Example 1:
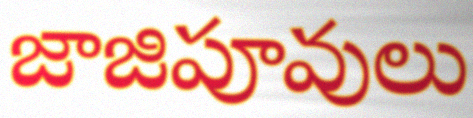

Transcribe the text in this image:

జాజిపూవులు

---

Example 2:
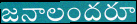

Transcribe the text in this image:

జనాలందరూ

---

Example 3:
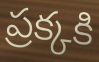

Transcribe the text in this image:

ప్రక్కకి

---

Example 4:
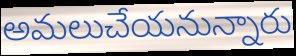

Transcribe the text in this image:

అమలుచేయనున్నారు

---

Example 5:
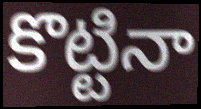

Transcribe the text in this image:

కొట్టినా